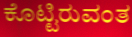
ಕೊಟ್ಟಿರುವಂತ